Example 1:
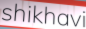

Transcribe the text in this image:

shikhavi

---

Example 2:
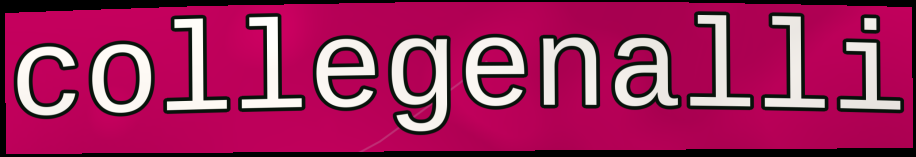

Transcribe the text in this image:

collegenalli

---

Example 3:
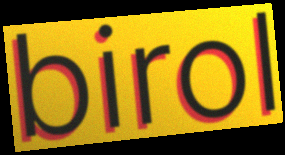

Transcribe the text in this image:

birol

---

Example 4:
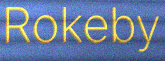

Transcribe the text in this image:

Rokeby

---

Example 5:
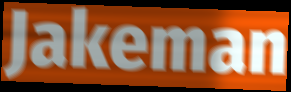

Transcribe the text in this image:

Jakeman